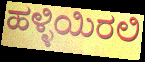
ಹಳ್ಳಿಯಿರಲಿ